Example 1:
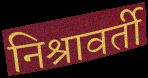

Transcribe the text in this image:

निश्रावर्ती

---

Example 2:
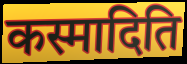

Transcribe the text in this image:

कस्मादिति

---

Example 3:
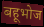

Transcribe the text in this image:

बहूभोज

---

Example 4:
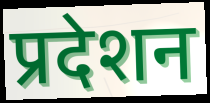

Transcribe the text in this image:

प्रदेशन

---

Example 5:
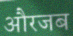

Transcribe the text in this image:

औरजब